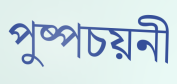
পুষ্পচয়নী